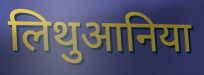
लिथुआनिया